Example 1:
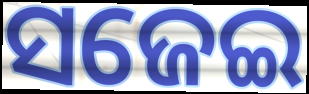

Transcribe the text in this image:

ସଜେଇ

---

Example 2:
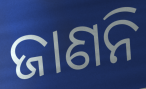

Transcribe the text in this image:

ଜାଣନି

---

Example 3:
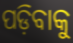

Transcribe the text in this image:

ପଡ଼ିବାକୁ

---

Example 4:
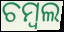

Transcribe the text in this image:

ଚମ୍ବଲ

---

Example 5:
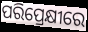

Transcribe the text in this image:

ପରିପ୍ରେକ୍ଷୀରେ